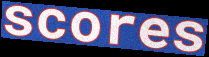
scores